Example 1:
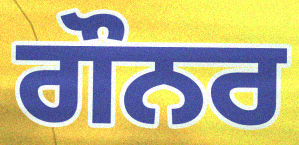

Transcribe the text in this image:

ਗੌਨਰ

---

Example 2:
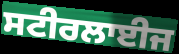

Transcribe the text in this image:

ਸਟੀਰਲਾਈਜ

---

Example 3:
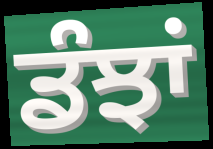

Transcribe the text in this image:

ਡੰਝਾਂ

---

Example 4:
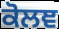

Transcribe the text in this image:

ਕੋਲਞ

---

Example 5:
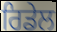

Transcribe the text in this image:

ਰਿਡੇਲ